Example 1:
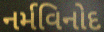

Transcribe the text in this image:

નર્મવિનોદ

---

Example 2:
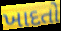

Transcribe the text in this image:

ખાદતો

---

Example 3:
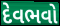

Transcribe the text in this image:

દેવભવો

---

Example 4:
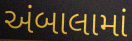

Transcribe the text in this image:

અંબાલામાં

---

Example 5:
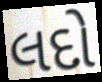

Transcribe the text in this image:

લદો